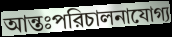
আন্তঃপরিচালনাযোগ্য